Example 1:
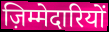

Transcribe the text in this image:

ज़िम्मेदारियों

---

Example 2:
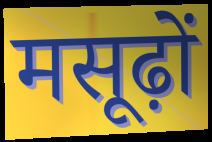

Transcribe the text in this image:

मसूढ़ों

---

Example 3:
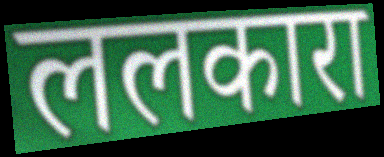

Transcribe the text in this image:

ललकारा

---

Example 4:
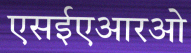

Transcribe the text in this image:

एसईएआरओ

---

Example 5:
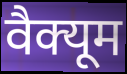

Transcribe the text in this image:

वैक्‍यूम